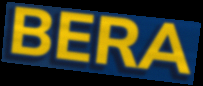
BERA